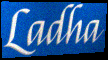
Ladha